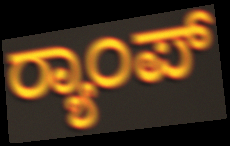
ರ‍್ಯಾಂಪ್